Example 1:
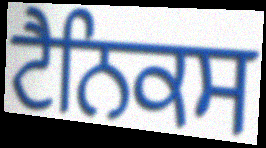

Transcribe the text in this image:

ਟੈਨਿਕਸ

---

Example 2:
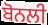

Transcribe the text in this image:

ਬੋਨਲੀ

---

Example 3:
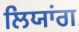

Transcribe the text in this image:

ਲਿਯਾਂਗ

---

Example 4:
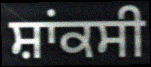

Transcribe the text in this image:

ਸ਼ਾਂਕਸੀ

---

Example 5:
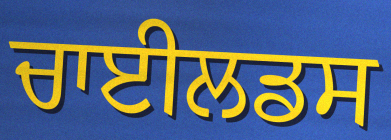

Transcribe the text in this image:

ਚਾਈਲਡਸ